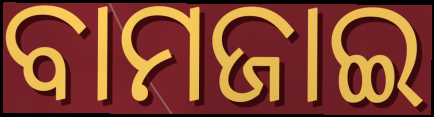
ବାମଜାଇ